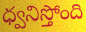
ధ్వనిస్తోంది